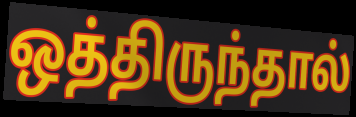
ஒத்திருந்தால்